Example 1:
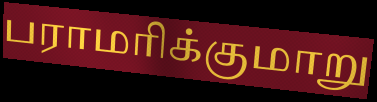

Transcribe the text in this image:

பராமரிக்குமாறு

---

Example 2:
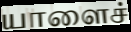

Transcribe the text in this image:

யாளைச்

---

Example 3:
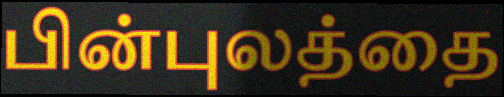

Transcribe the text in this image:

பின்புலத்தை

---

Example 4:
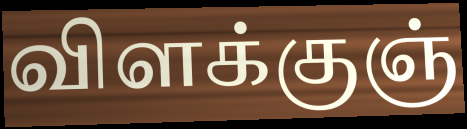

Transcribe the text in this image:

விளக்குஞ்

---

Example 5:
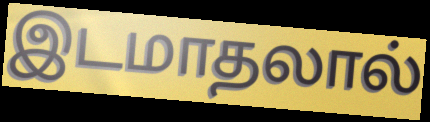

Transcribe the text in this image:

இடமாதலால்